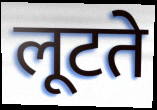
लूटते